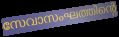
സേവാസംഘത്തിന്റെ